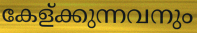
കേള്ക്കുന്നവനും